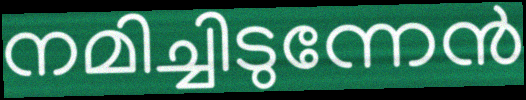
നമിച്ചിടുന്നേൻ